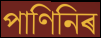
পাণিনিৰ